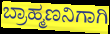
ಬ್ರಾಹ್ಮಣನಿಗಾಗಿ